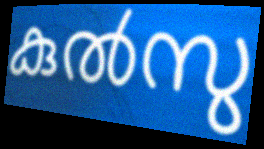
കുൽസു